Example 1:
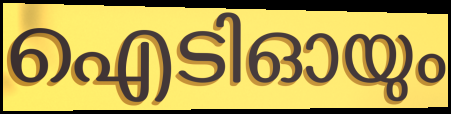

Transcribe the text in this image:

ഐടിഓയും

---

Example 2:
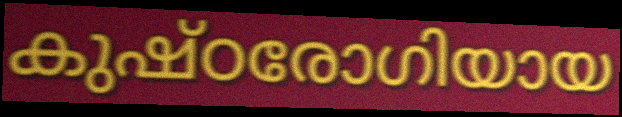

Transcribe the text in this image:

കുഷ്ഠരോഗിയായ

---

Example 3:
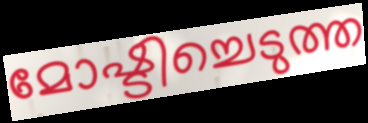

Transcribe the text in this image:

മോഷ്ടിച്ചെടുത്ത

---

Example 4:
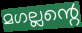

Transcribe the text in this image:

മഗല്ലന്റെ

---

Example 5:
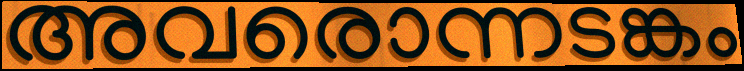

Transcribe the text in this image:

അവരൊന്നടങ്കം